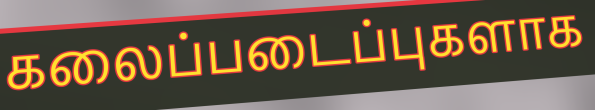
கலைப்படைப்புகளாக